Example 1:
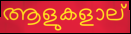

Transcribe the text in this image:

ആളുകളാല്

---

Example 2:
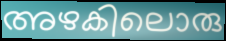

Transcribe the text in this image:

അഴകിലൊരു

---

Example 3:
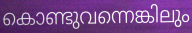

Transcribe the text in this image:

കൊണ്ടുവന്നെങ്കിലും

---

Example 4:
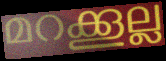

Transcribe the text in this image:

മറക്കൂല്ല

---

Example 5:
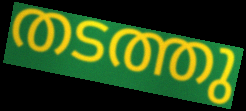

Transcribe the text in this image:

തടത്തു